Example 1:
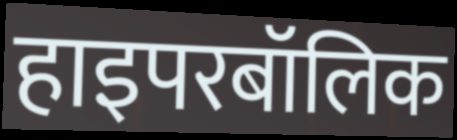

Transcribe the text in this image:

हाइपरबॉलिक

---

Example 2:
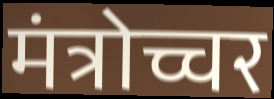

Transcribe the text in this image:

मंत्रोच्चर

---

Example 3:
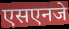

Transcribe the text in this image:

एसएनजे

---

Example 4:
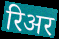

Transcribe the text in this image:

रिअर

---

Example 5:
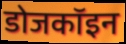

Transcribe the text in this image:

डोजकॉइन